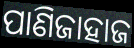
ପାଣିଜାହାଜ